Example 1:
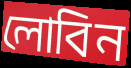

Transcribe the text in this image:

লোবিন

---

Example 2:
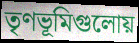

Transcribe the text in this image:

তৃণভূমিগুলোয়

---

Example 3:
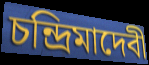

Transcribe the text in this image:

চন্দ্রিমাদেবী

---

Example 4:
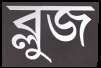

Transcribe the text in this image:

ব্লুজ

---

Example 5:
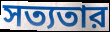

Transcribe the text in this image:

সত্যতার